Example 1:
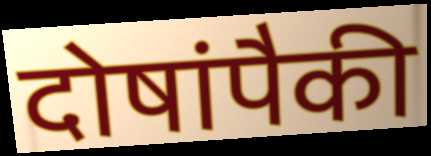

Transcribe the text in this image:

दोषांपैकी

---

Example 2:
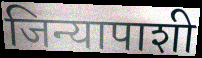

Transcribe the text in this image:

जिन्यापाशी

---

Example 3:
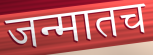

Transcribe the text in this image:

जन्मातच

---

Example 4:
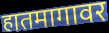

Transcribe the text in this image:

हातमागावर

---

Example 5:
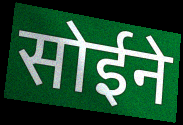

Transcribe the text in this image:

सोईने